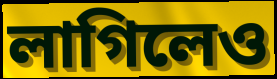
লাগিলেও